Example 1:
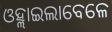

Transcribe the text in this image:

ଓହ୍ଲାଇଲାବେଳେ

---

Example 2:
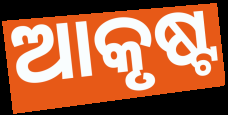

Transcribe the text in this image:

ଆକୃଷ୍ଟ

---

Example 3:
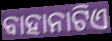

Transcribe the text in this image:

ବାହାନାଟିଏ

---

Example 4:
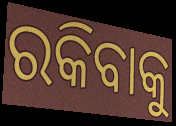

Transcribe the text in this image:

ରକିବାକୁ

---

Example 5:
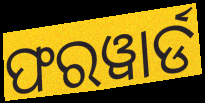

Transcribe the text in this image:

ଫରୱାର୍ଡ